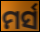
ମର୍ସ